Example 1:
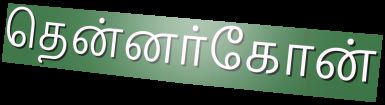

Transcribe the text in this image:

தென்னர்கோன்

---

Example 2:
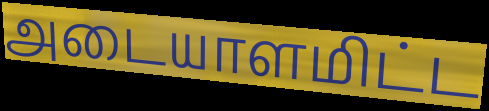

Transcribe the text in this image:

அடையாளமிட்ட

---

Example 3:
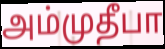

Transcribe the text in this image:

அம்முதீபா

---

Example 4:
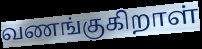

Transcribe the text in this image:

வணங்குகிறாள்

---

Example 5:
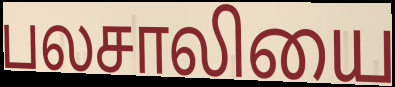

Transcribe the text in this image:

பலசாலியை